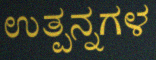
ಉತ್ಪನ್ನಗಳ